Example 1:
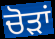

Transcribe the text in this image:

ਚੋੜਾਂ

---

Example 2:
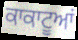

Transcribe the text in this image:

ਕਾਕਾਟੂਆਂ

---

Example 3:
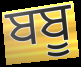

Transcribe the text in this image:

ਬਬੂ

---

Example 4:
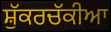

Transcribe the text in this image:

ਸ਼ੁੱਕਰਚੱਕੀਆ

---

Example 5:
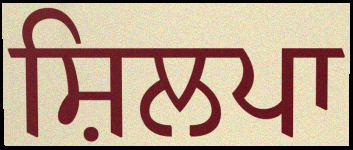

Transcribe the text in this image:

ਸ਼ਿਲਪਾ